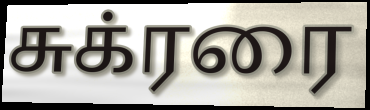
சுக்ரரை